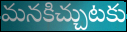
మనకిచ్చుటకు